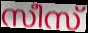
സീസ്